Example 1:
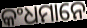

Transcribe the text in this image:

କଂଧମାନେ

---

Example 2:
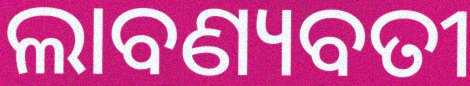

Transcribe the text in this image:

ଲାବଣ୍ୟବତୀ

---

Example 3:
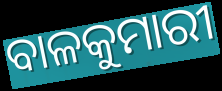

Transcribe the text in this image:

ବାଳକୁମାରୀ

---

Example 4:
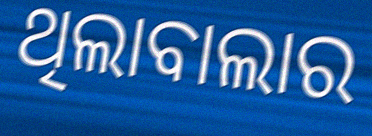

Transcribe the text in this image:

ଥିଲାବାଲାର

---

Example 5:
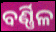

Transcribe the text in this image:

ବର୍ଣ୍ଣିଳ